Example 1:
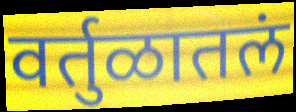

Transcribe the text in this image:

वर्तुळातलं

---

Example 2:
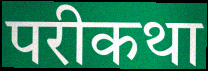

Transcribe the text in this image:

परीकथा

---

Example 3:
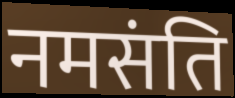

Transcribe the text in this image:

नमसंति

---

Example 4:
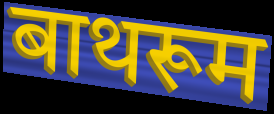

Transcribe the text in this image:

बाथरूम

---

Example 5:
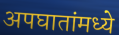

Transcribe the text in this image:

अपघातांमध्ये